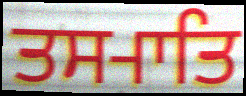
ਤਸ੍ਮਾਤਿ